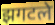
झगटले